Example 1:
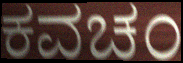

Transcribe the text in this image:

ಕವಚಂ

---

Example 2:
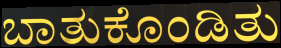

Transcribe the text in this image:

ಬಾತುಕೊಂಡಿತು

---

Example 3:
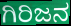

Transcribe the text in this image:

ಗಿರಿಜನ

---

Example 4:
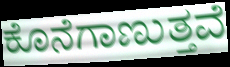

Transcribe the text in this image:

ಕೊನೆಗಾಣುತ್ತವೆ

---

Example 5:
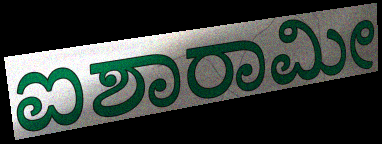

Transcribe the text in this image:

ಐಶಾರಾಮೀ